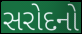
સરોદનો